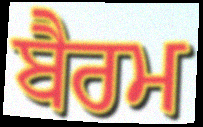
ਬੈਰਮ